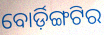
ବୋର୍ଡ଼ିଙ୍ଗଟିର